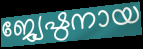
ജ്യേഷ്ഠനായ